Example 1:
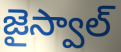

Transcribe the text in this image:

జైస్వాల్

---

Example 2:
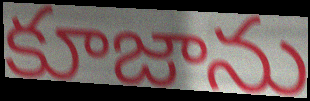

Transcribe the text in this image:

కూజాను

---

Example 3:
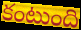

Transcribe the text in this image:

కంటుంది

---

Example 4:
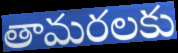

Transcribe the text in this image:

తామరలకు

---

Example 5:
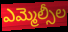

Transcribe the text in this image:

ఎమ్మెల్సీల